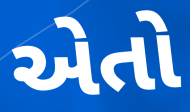
એતો